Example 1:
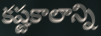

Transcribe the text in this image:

కష్టకాలాన్ని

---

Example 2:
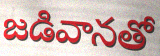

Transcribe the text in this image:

జడివానతో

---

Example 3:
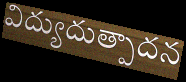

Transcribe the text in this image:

విద్యుదుత్పాదన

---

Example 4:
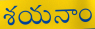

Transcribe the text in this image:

శయనాం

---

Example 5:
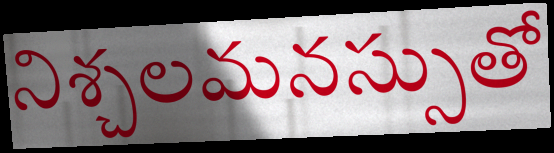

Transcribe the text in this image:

నిశ్చలమనస్సుతో